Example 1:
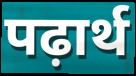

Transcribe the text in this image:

पढ़ार्थ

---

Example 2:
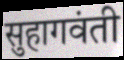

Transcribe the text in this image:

सुहागवंती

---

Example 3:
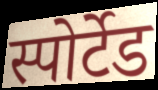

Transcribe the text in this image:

स्पोर्टेड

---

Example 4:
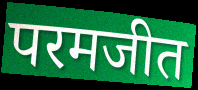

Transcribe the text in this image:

परमजीत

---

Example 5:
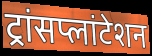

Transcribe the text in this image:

ट्रांसप्लांटेशन